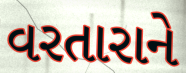
વરતારાને